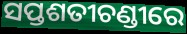
ସପ୍ତଶତୀଚଣ୍ଡୀରେ